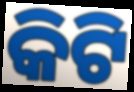
କିଟି